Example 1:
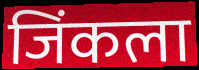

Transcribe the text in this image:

जिंकला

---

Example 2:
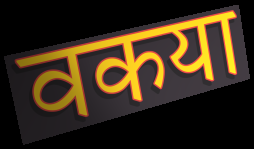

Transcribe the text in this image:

वकया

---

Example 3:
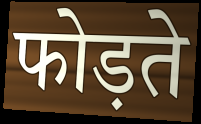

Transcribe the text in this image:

फोड़ते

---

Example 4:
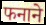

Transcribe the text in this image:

फनाने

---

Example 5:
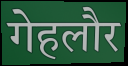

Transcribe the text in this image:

गेहलौर